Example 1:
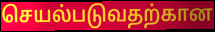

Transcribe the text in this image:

செயல்படுவதற்கான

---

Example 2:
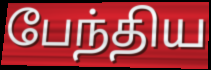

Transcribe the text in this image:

பேந்திய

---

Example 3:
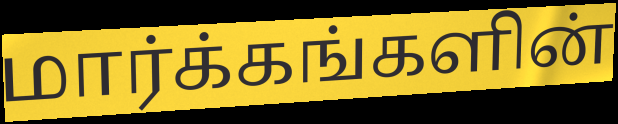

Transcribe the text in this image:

மார்க்கங்களின்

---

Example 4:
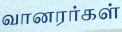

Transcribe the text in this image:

வானரர்கள்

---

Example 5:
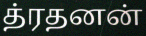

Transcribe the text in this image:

த்ரதனன்